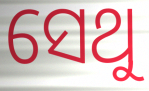
ସେଥୁ